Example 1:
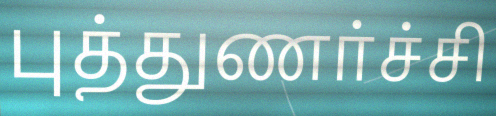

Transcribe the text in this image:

புத்துணர்ச்சி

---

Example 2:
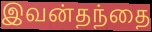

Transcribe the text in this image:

இவன்தந்தை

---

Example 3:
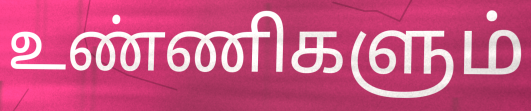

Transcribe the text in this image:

உண்ணிகளும்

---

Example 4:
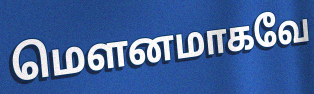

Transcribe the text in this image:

மெளனமாகவே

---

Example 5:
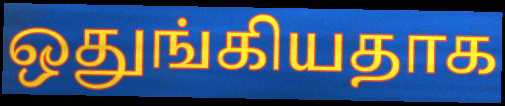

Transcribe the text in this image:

ஒதுங்கியதாக